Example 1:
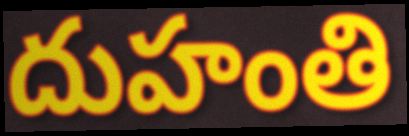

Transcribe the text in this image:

దుహంతి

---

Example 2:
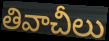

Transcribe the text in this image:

తివాచీలు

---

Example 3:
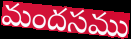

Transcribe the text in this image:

మందసము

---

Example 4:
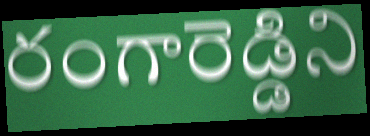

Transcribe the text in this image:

రంగారెడ్డిని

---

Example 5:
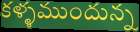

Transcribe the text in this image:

కళ్ళముందున్న